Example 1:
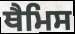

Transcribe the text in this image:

ਥੈਮਿਸ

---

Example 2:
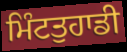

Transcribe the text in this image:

ਮਿੰਟਤੁਹਾਡੀ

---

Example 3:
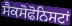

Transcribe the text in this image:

ਸੈਕਸੋਫੋਨਿਸਟਾਂ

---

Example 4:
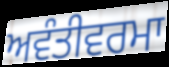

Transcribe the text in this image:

ਅਵੰਤੀਵਰਮਾ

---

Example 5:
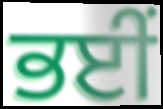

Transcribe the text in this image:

ਭਈਂ